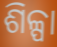
ଶିଳ୍ପା